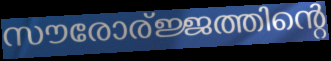
സൗരോര്ജ്ജത്തിന്റെ